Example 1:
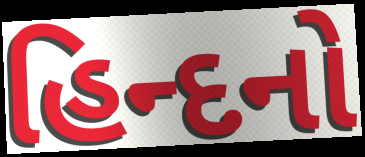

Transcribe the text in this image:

હિન્દનો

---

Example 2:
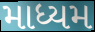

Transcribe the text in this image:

માધ્યમ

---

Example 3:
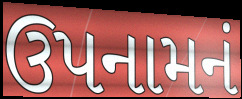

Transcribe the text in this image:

ઉપનામનં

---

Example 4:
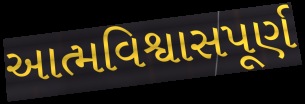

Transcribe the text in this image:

આત્મવિશ્વાસપૂર્ણ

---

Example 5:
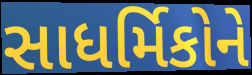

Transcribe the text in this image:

સાધર્મિકોને